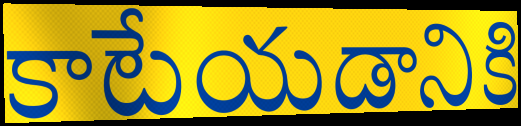
కాటేయడానికి